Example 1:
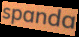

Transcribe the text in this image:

spanda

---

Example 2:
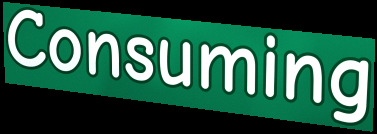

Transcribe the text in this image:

Consuming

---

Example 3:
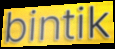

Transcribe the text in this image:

bintik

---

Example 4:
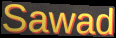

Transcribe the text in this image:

Sawad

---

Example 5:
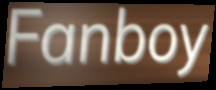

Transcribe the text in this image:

Fanboy